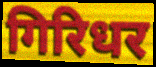
गिरिधर